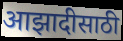
आझादीसाठी